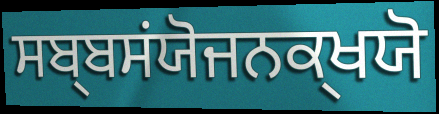
ਸਬ੍ਬਸਂਯੋਜਨਕ੍ਖਯੋ